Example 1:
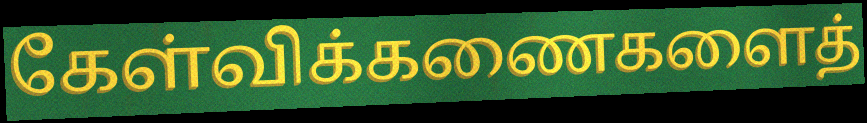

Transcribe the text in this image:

கேள்விக்கணைகளைத்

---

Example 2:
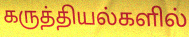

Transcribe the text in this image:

கருத்தியல்களில்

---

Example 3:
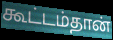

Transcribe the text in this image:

கூட்டம்தான்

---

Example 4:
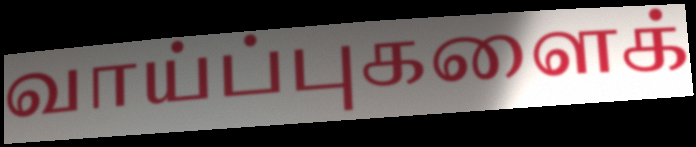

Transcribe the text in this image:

வாய்ப்புகளைக்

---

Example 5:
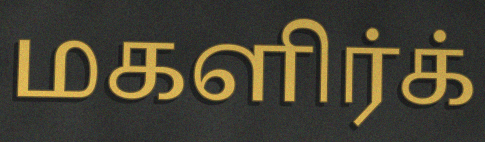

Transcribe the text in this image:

மகளிர்க்